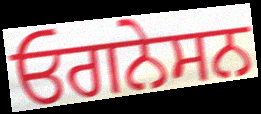
ਓਗਨੇਸਨ